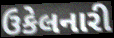
ઉકેલનારી